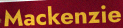
Mackenzie